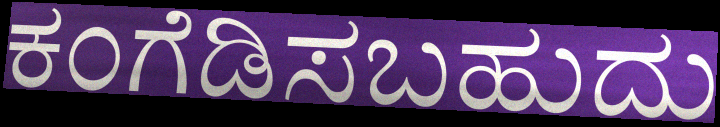
ಕಂಗೆಡಿಸಬಹುದು